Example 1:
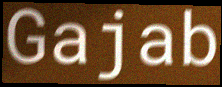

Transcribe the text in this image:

Gajab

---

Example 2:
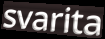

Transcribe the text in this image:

svarita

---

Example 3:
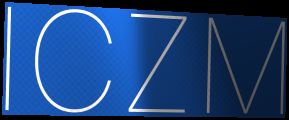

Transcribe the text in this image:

ICZM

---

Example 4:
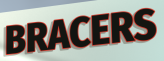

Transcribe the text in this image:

BRACERS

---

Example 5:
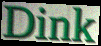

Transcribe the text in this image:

Dink